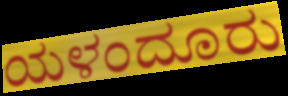
ಯಳಂದೂರು